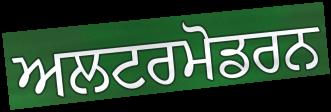
ਅਲਟਰਮੋਡਰਨ